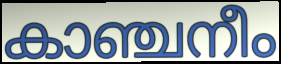
കാഞ്ചനീം